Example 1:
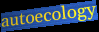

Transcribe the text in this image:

autoecology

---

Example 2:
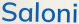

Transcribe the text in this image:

Saloni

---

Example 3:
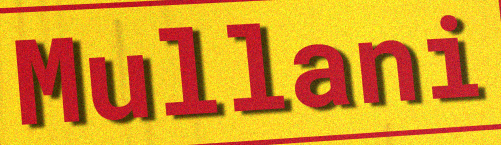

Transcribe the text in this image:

Mullani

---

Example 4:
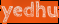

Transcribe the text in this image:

yedhu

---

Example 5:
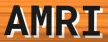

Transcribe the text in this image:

AMRI